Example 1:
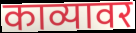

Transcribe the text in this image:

काव्यावर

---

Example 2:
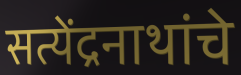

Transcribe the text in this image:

सत्येंद्रनाथांचे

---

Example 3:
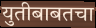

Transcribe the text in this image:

युतीबाबतचा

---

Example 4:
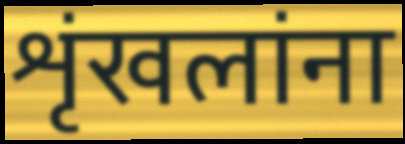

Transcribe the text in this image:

शृंखलांना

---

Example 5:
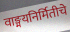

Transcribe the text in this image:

वाङ्मयनिर्मितीचे